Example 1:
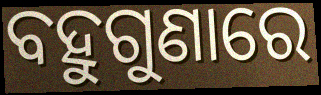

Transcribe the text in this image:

ବହୁଗୁଣାରେ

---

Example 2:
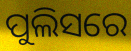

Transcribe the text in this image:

ପୁଲିସରେ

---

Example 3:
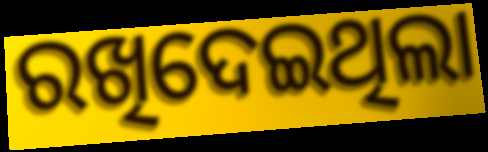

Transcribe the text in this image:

ରଖିଦେଇଥିଲା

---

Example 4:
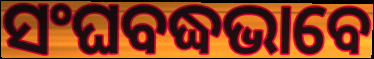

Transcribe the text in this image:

ସଂଘବଦ୍ଧଭାବେ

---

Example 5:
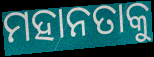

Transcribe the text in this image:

ମହାନତାକୁ